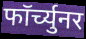
फॉर्च्युनर